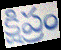
క్షిప్రం